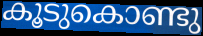
കൂടുകൊണ്ടു